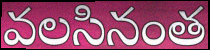
వలసినంత